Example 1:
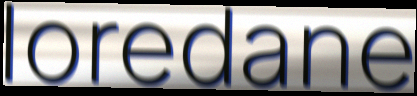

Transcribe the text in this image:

Ioredane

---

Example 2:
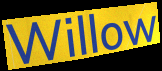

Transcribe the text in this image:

Willow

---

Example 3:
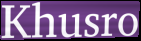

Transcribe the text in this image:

Khusro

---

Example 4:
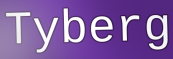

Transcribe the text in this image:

Tyberg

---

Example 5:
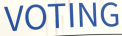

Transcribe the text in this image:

VOTING